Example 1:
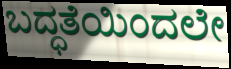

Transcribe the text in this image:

ಬದ್ಧತೆಯಿಂದಲೇ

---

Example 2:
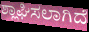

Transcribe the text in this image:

ಶ್ಲಾಘಿಸಲಾಗಿದೆ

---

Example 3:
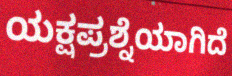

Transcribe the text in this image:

ಯಕ್ಷಪ್ರಶ್ನೆಯಾಗಿದೆ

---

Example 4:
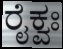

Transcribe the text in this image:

ರೈಕ್ವಃ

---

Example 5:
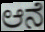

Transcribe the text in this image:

ಆನೆ